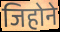
जिहोने